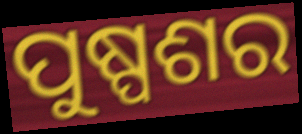
ପୁଷ୍ପଶର